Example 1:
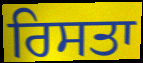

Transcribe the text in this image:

ਰਿਸਤਾ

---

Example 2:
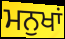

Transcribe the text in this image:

ਮਨੁਖਾਂ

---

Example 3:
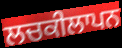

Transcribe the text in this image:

ਲਚਕੀਲਾਪਨ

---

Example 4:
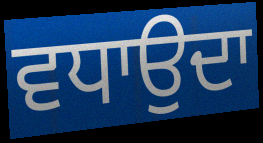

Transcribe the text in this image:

ਵਧਾਉਦਾ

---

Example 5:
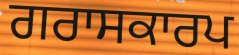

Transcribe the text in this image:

ਗਰਾਸਕਾਰਪ